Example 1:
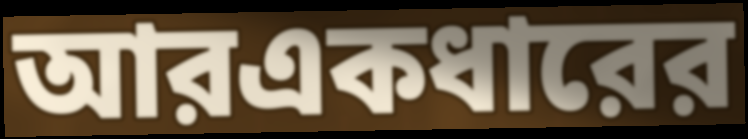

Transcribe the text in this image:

আরএকধারের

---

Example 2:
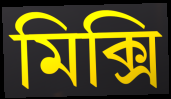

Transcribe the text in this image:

মিক্সি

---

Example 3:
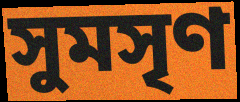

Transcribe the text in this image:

সুমসৃণ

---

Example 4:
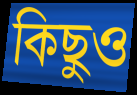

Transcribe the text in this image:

কিছুও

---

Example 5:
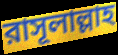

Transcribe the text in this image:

রাসূলাল্লাহ